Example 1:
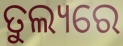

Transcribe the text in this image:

ତୁଲ୍ୟରେ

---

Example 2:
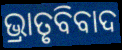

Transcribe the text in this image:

ଭ୍ରାତୃବିବାଦ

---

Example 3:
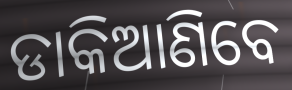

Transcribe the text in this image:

ଡାକିଆଣିବେ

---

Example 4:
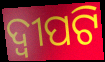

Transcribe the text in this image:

ଦ୍ୱୀପଟି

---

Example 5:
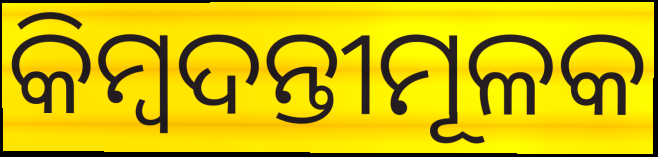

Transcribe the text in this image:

କିମ୍ବଦନ୍ତୀମୂଳକ